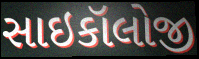
સાઇકૉલોજી